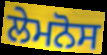
ਲੇਮਨੋਸ